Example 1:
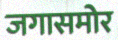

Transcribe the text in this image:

जगासमोर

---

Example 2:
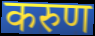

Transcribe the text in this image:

करुण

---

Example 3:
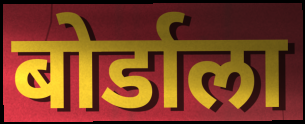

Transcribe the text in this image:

बोर्डाला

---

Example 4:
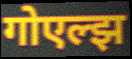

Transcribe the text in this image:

गोएल्झ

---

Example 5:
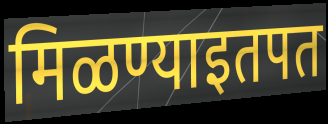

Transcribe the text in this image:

मिळण्याइतपत